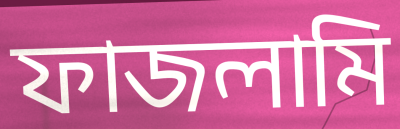
ফাজলামি